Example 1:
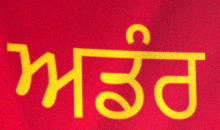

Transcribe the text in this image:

ਅਡੰਰ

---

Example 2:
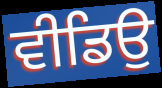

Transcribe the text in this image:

ਵੀਡਿਉ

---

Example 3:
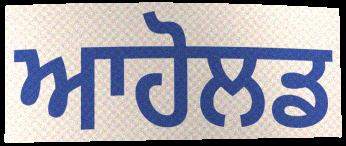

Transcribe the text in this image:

ਆਹੋਲਡ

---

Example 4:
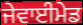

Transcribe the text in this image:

ਜੇਵਾਈਮੇਡ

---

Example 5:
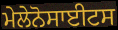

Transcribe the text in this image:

ਮੇਲੇਨੋਸਾਈਟਸ